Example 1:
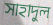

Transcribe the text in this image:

সাহাদুল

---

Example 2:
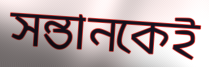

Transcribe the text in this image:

সন্তানকেই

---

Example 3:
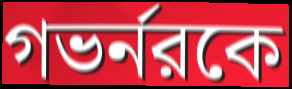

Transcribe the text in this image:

গভর্নরকে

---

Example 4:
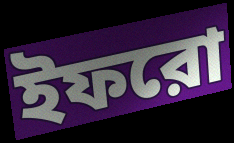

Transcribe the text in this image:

ইফরো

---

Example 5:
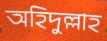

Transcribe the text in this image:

অহিদুল্লাহ